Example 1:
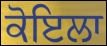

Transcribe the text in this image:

ਕੋਇਲਾ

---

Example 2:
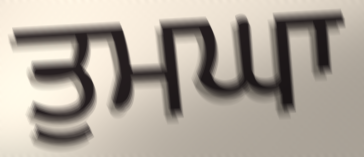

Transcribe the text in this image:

ਤੁਮਘਾ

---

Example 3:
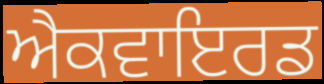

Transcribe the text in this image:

ਐਕਵਾਇਰਡ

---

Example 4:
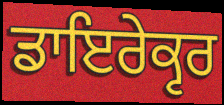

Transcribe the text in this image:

ਡਾਇਰੇਕ੍ਟਰ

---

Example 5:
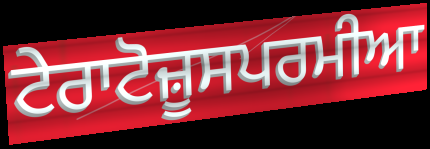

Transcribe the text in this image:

ਟੇਰਾਟੋਜ਼ੂਸਪਰਮੀਆ